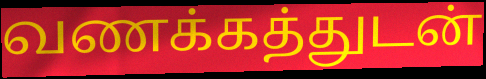
வணக்கத்துடன்